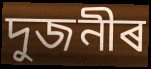
দুজনীৰ